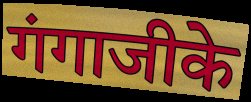
गंगाजीके